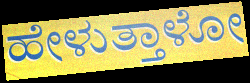
ಹೇಳುತ್ತಾಳೋ